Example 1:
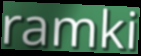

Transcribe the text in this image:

ramki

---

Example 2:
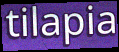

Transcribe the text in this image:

tilapia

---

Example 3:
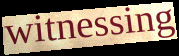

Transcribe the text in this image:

witnessing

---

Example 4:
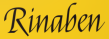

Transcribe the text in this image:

Rinaben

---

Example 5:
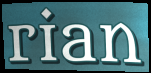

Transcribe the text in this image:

rian